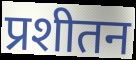
प्रशीतन